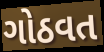
ગોઠવત